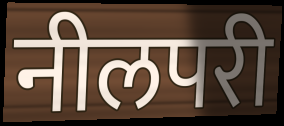
नीलपरी